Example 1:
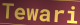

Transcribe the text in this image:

Tewari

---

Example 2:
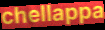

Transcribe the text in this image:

chellappa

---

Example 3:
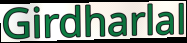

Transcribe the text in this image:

Girdharlal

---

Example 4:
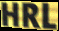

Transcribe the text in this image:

HRL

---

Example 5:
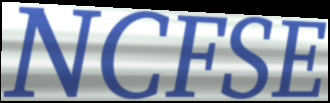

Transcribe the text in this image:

NCFSE